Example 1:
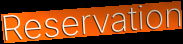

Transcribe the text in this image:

Reservation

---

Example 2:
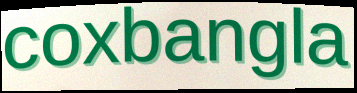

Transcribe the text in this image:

coxbangla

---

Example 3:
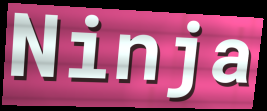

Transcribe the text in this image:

Ninja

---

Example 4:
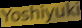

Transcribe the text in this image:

Yoshiyuki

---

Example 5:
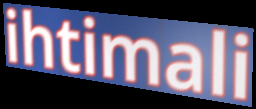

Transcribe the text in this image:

ihtimali